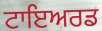
ਟਾਇਅਰਡ